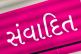
સંવાદિત